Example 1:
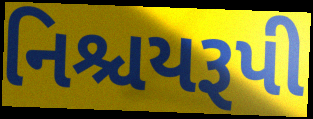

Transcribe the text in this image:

નિશ્ચયરૂપી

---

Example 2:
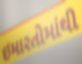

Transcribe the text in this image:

ઇમારતોમાંથી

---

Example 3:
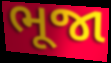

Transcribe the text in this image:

ભૂજા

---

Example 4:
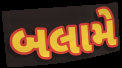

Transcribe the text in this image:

બલામે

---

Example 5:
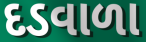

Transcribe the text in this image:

દડવાળા